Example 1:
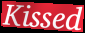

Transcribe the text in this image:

Kissed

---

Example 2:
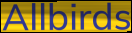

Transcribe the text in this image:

Allbirds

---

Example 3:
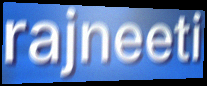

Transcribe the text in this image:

rajneeti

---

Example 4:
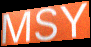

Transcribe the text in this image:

MSY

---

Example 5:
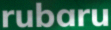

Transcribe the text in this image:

rubaru